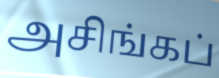
அசிங்கப்